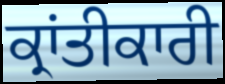
ਕ੍ਰਾਂਤੀਕਾਰੀ